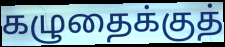
கழுதைக்குத்